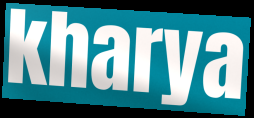
kharya